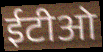
ईटीओ